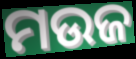
ମଉଜ